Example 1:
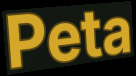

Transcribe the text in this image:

Peta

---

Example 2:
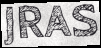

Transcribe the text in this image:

JRAS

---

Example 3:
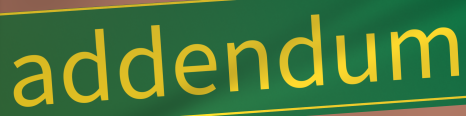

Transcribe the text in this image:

addendum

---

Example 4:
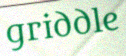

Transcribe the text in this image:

griddle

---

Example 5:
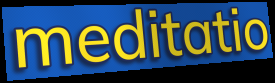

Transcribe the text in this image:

meditatio